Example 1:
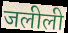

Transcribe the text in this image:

जलीली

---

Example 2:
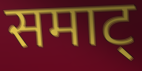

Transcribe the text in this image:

समाट्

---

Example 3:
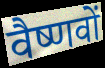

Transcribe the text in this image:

वैष्णवों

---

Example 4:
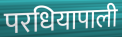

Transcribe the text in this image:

परधियापाली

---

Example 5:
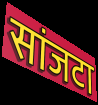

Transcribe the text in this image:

सांजटा